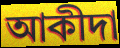
আকীদা